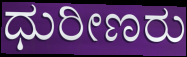
ಧುರೀಣರು